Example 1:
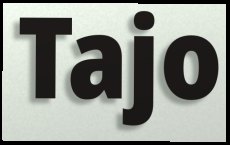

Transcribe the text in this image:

Tajo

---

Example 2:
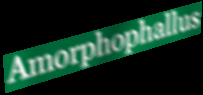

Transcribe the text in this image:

Amorphophallus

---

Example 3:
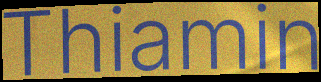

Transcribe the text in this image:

Thiamin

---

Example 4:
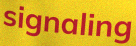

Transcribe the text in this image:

signaling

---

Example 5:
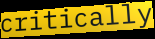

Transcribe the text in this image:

critically